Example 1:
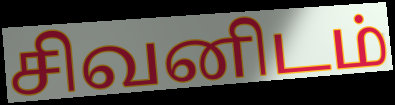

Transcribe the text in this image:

சிவனிடம்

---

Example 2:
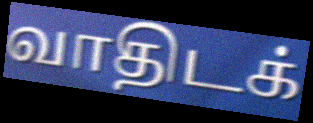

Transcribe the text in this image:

வாதிடக்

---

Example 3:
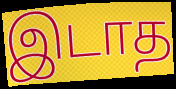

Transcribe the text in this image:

இடாத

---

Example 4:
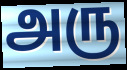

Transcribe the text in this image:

அரு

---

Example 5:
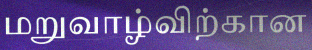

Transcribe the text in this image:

மறுவாழ்விற்கான